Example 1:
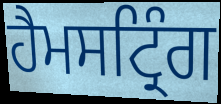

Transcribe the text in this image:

ਹੈਮਸਟ੍ਰਿੰਗ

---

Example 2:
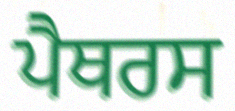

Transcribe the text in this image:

ਪੈਥਰਸ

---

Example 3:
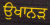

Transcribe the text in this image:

ਉਖਾਨੜ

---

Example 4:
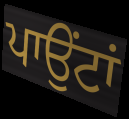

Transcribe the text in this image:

ਪਾਉਂਟਾਂ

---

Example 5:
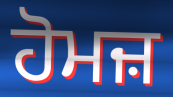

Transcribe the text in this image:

ਹੋਮਜ਼